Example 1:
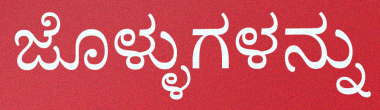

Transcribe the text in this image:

ಜೊಳ್ಳುಗಳನ್ನು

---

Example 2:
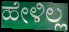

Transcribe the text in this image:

ಹೇಳಿಲ್ಲ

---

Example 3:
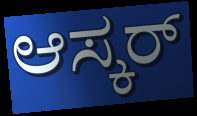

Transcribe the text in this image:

ಆಸ್ಕರ್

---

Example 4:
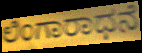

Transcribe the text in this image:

ಲಿಂಗಾರಾಧನೆ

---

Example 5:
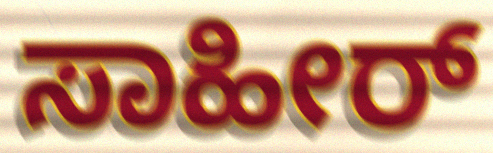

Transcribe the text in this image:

ಸಾಹೀರ್